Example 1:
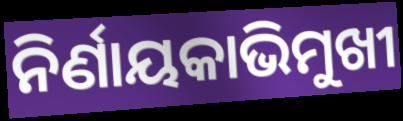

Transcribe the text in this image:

ନିର୍ଣାୟକାଭିମୁଖୀ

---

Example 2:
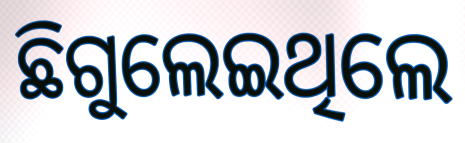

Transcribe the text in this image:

ଛିଗୁଲେଇଥିଲେ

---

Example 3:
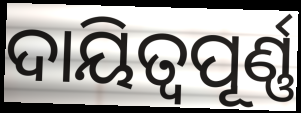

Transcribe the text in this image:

ଦାୟିତ୍ୱପୂର୍ଣ୍ଣ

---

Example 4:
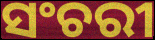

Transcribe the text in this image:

ସଂଚରୀ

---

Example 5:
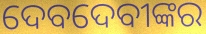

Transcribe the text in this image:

ଦେବଦେବୀଙ୍କର